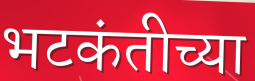
भटकंतीच्या